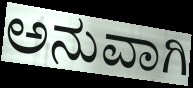
ಅನುವಾಗಿ